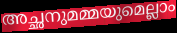
അച്ഛനുമമ്മയുമെല്ലാം